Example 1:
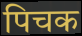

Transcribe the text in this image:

पिचक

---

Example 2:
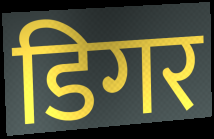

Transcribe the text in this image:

डिगर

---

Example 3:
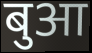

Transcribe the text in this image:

बुआ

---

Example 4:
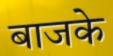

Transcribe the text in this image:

बाजके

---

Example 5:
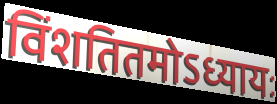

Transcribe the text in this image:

विंशतितमोऽध्यायः